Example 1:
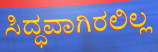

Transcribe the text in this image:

ಸಿದ್ಧವಾಗಿರಲಿಲ್ಲ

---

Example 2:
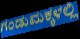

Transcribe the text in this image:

ಗಂಡುಮಕ್ಕಳಲ್ಲಿ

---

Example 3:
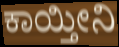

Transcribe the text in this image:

ಕಾಯ್ತೀನಿ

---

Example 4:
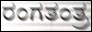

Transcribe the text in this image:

ರಂಗತಂತ್ರ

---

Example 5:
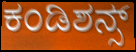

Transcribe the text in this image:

ಕಂಡಿಶನ್ಸ್